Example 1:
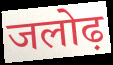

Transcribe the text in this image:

जलोढ़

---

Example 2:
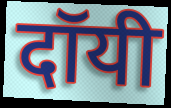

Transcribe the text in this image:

दॉयी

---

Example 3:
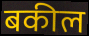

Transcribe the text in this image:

बकील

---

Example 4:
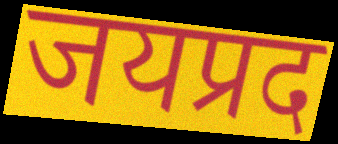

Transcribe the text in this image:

जयप्रद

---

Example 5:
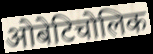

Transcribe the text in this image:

ओबेटिचोलिक